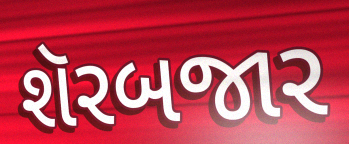
શૅરબજાર